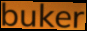
buker